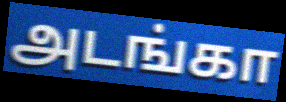
அடங்கா